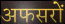
अफसरों